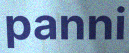
panni